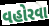
વહોરવા